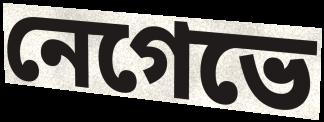
নেগেভে